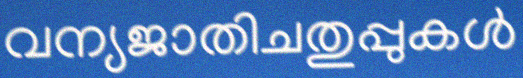
വന്യജാതിചതുപ്പുകൾ